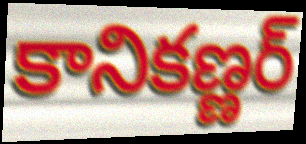
కానికణ్ణర్